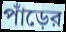
পাঁড়ের